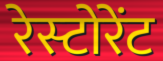
रेस्‍टोरेंट